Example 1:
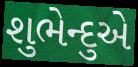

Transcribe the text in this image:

શુભેન્દુએ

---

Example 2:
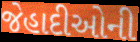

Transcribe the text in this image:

જેહાદીઓની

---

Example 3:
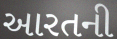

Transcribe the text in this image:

આરતની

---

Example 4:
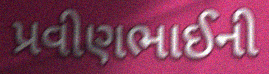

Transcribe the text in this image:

પ્રવીણભાઈની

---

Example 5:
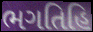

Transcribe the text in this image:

ભગતિહિ